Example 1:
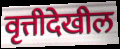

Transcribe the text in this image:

वृत्तीदेखील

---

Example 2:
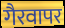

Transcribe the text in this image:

गैरवापर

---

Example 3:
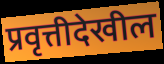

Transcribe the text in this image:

प्रवृत्तीदेखील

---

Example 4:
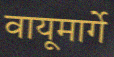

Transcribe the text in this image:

वायूमार्गे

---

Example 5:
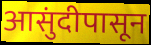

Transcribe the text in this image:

आसुंदीपासून